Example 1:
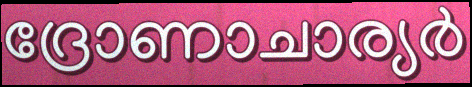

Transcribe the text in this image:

ദ്രോണാചാര്യർ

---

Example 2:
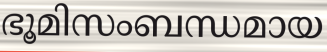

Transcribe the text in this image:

ഭൂമിസംബന്ധമായ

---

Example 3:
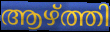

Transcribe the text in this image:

ആഴ്ത്തി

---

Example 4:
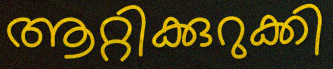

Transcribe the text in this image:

ആറ്റിക്കുറുക്കി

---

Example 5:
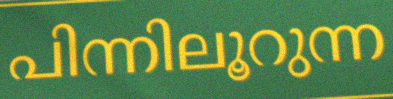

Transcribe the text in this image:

പിന്നിലൂറുന്ന